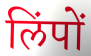
लिंपों